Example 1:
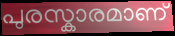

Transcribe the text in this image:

പുരസ്കാരമാണ്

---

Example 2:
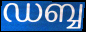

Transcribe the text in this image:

ഡബ്ബ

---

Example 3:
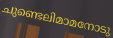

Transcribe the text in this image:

ചുണ്ടെലിമാമനോടു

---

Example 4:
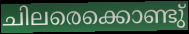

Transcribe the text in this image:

ചിലരെക്കൊണ്ടു്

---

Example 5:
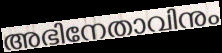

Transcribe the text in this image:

അഭിനേതാവിനും